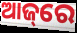
ଆଜ୍‌ରେ